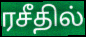
ரசீதில்